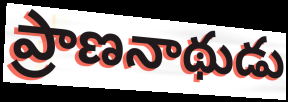
ప్రాణనాథుడు